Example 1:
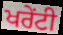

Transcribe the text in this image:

ਖਰੇਂਟੀ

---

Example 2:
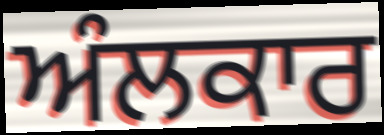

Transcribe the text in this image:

ਅੰਲਕਾਰ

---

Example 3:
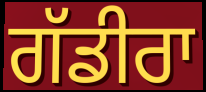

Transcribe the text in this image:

ਗੱਡੀਰਾ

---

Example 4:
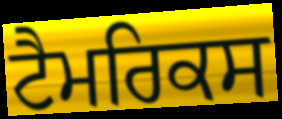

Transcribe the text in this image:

ਟੈਮਰਿਕਸ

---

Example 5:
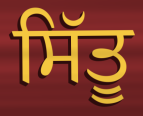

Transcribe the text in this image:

ਸਿੱਤੂ